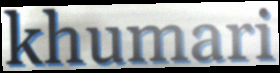
khumari